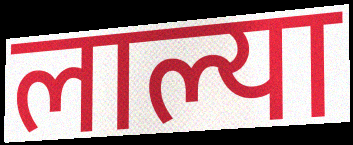
लाल्या